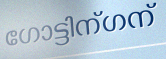
ഗോട്ടിന്ഗന്